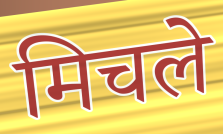
मिचले